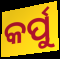
କର୍ପୁ